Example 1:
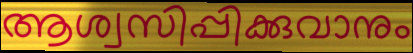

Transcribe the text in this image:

ആശ്വസിപ്പിക്കുവാനും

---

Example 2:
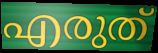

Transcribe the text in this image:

എരുത്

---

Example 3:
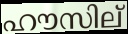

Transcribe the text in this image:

ഹൗസില്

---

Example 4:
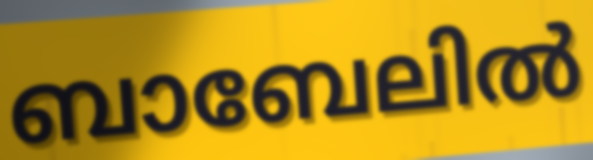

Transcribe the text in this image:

ബാബേലിൽ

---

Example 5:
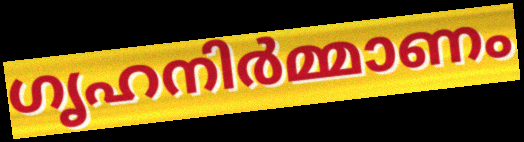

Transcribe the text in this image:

ഗൃഹനിർമ്മാണം